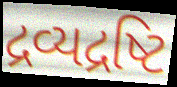
દ્રવ્યદ્રષ્ટિ